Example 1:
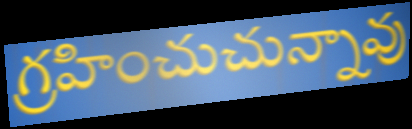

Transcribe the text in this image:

గ్రహించుచున్నావు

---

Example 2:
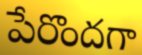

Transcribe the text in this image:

పేరొందగా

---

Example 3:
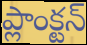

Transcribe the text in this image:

ప్లాంక్టన్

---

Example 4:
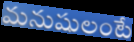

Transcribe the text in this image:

మనుషులంటే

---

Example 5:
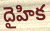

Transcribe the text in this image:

దైహిక